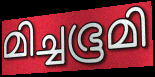
മിച്ചഭൂമി